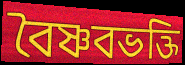
বৈষ্ণবভক্তি